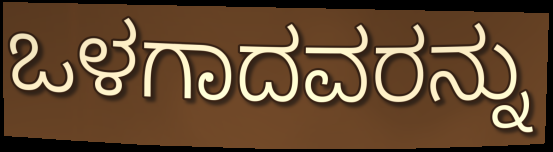
ಒಳಗಾದವರನ್ನು